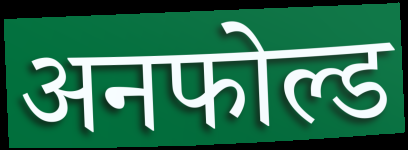
अनफोल्ड